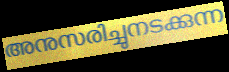
അനുസരിച്ചുനടക്കുന്ന